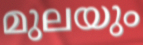
മുലയും